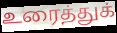
உரைத்துக்